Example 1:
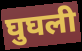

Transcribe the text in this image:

घुघली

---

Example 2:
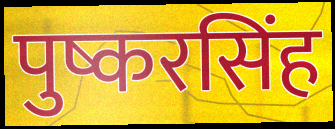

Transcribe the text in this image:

पुष्करसिंह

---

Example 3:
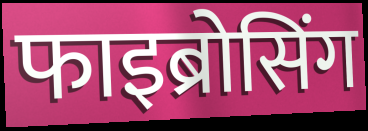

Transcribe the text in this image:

फाइब्रोसिंग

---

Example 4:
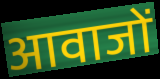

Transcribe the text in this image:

आवाजों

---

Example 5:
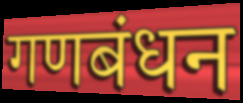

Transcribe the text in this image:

गणबंधन